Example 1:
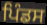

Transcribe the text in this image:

ਪਿੰਡਸ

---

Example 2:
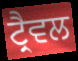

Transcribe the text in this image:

ਟ੍ਰੈਵਲ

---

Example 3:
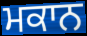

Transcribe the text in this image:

ਮਕਾਨ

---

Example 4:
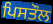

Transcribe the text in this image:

ਪਿਸਤੌਲ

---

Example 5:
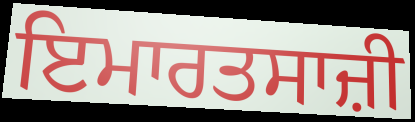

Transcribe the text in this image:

ਇਮਾਰਤਸਾਜ਼ੀ